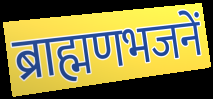
ब्राह्मणभजनें